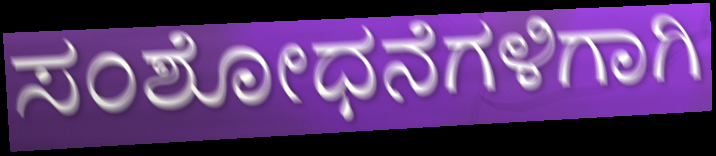
ಸಂಶೋಧನೆಗಳಿಗಾಗಿ